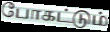
போகட்டும்